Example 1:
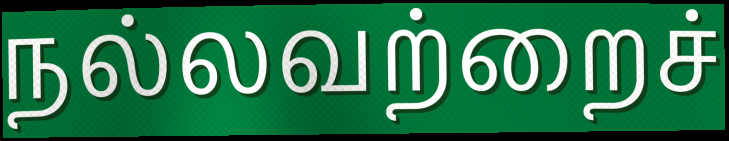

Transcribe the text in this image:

நல்லவற்றைச்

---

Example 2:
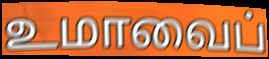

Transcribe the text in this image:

உமாவைப்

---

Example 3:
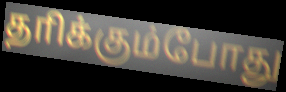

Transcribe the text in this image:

தரிக்கும்போது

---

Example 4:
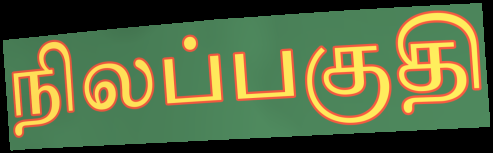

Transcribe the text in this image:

நிலப்பகுதி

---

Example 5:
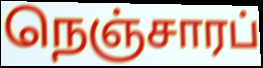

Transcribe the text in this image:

நெஞ்சாரப்